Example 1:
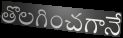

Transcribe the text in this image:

తొలగించగానే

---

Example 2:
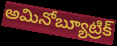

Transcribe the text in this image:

అమినోబ్యూట్రిక్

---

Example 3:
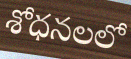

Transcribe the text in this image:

శోధనలలో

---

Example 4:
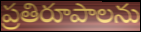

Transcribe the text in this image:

ప్రతిరూపాలను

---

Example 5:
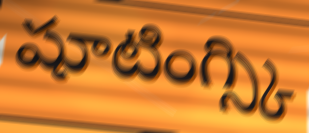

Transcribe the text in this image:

షూటింగ్స్కి